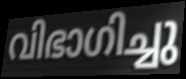
വിഭാഗിച്ചു